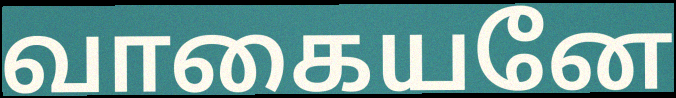
வாகையனே